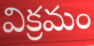
విక్రమం